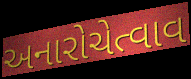
અનારોચેત્વાવ